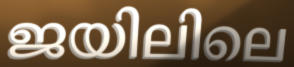
ജയിലിലെ